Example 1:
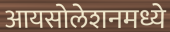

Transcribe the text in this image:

आयसोलेशनमध्ये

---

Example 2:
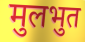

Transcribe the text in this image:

मुलभुत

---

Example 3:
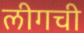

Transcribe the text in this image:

लीगची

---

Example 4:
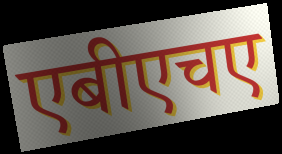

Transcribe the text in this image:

एबीएचए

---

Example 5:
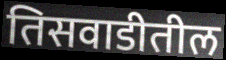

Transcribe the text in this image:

तिसवाडीतील